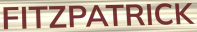
FITZPATRICK